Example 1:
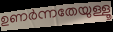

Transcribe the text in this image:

ഉണർന്നതേയുള്ളൂ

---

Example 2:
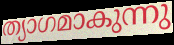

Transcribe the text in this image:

ത്യാഗമാകുന്നു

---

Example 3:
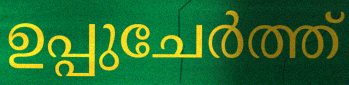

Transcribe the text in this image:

ഉപ്പുചേർത്ത്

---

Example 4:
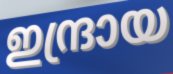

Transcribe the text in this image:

ഇന്ദ്രായ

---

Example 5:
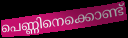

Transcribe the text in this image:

പെണ്ണിനെക്കൊണ്ട്